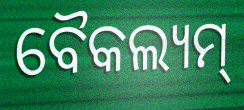
ବୈକଲ୍ୟମ୍